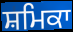
ਸ਼ਮਿਕਾ